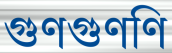
গুণগুণণি